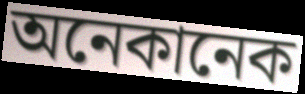
অনেকানেক